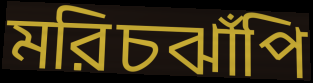
মরিচঝাঁপি